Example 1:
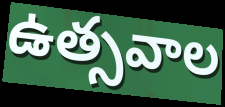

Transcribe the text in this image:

ఉత్సవాల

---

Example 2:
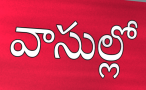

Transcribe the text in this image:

వాసుల్లో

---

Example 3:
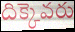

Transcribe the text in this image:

దిక్కెవరు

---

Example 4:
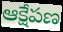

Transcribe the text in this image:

ఆక్షేపణ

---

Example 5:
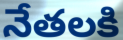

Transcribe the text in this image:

నేతలకి